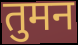
तुमन